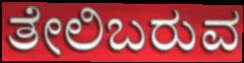
ತೇಲಿಬರುವ